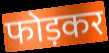
फोड़कर